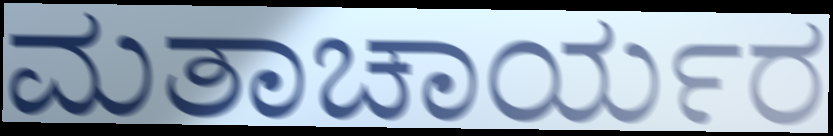
ಮತಾಚಾರ್ಯರ